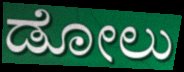
ಡೋಲು